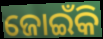
ଜୋଇଁକି